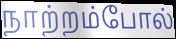
நாற்றம்போல்